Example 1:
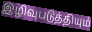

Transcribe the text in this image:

இழிவுபடுத்தியும்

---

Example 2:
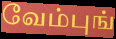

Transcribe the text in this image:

வேம்புங்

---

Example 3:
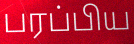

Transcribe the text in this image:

பரப்பிய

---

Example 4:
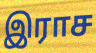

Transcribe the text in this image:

இராச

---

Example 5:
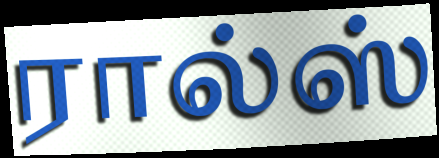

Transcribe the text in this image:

ரால்ஸ்